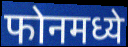
फोनमध्ये